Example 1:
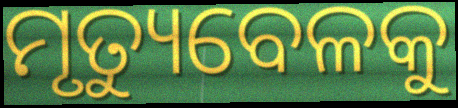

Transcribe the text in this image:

ମୃତ୍ୟୁବେଳକୁ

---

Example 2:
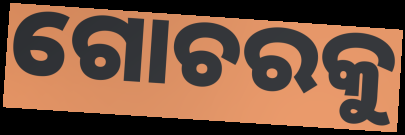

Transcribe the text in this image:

ଗୋଚରକୁ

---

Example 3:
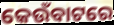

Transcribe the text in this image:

କେଉଁବାଟରେ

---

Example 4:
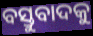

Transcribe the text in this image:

ବସ୍ତୁବାଦକୁ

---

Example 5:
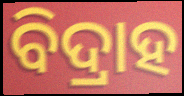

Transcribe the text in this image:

ବିଦ୍ରାହ